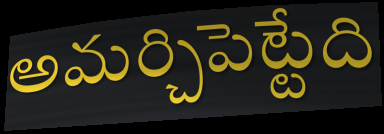
అమర్చిపెట్టేది